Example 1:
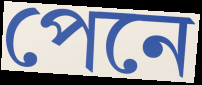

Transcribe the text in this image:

পেনে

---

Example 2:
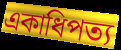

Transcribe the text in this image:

একাধিপত্য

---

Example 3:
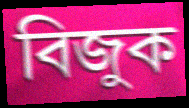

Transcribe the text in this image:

বিজুক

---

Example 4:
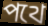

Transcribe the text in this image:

পথে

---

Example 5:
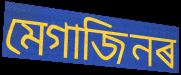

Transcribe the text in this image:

মেগাজিনৰ